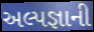
અલ્પજ્ઞાની